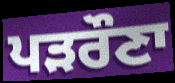
ਪੜਰੌਣਾ